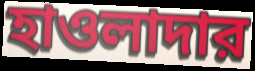
হাওলাদার